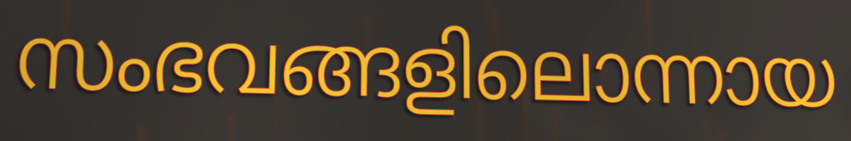
സംഭവങ്ങളിലൊന്നായ